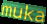
muka